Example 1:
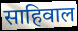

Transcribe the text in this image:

साहिवाल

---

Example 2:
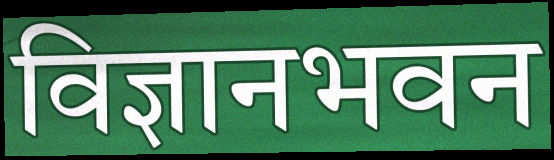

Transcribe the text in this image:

विज्ञानभवन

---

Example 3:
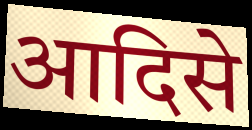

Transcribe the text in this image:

आदिसे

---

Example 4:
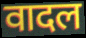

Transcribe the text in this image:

वादल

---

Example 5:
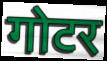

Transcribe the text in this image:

गोटर